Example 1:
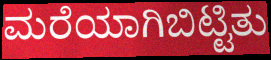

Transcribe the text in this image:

ಮರೆಯಾಗಿಬಿಟ್ಟಿತು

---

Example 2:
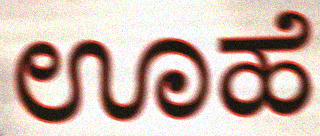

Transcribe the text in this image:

ಊಹೆ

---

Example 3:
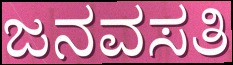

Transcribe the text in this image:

ಜನವಸತಿ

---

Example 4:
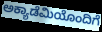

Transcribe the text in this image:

ಅಕ್ಯಾಡೆಮಿಯೊಂದಿಗೆ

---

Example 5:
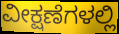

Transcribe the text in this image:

ವೀಕ್ಷಣೆಗಳಲ್ಲಿ